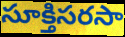
సూక్తిసరసా